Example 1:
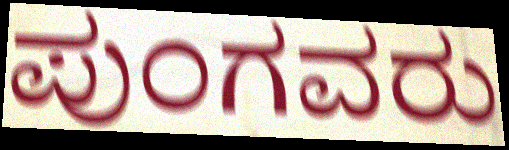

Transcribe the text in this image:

ಪುಂಗವರು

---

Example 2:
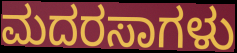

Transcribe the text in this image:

ಮದರಸಾಗಳು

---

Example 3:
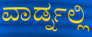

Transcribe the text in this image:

ವಾರ್ಡ್ನಲ್ಲಿ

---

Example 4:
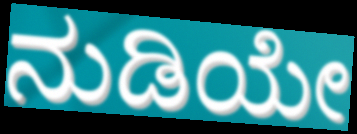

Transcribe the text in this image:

ನುಡಿಯೇ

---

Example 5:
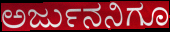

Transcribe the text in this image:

ಅರ್ಜುನನಿಗೂ